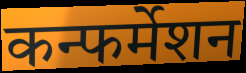
कन्‍फर्मेशन